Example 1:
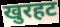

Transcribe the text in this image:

खुरहट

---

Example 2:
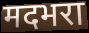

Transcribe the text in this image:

मदभरा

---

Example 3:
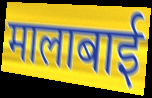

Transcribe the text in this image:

मालाबाई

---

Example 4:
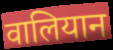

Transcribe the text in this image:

वालियान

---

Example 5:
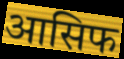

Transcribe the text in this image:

आसिफ